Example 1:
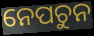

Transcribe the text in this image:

ନେପଚୁନ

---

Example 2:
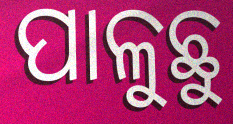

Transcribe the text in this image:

ପାଳୁଛୁ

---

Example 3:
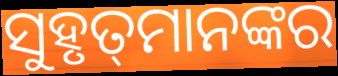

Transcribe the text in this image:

ସୁହୃତ୍‌ମାନଙ୍କର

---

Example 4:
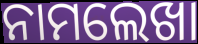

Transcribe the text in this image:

ନାମଲେଖା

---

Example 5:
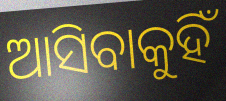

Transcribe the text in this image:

ଆସିବାକୁହିଁ